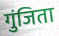
गुंजिता